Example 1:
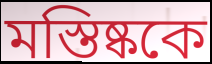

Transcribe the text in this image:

মস্তিষ্ককে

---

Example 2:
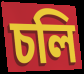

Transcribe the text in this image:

চলি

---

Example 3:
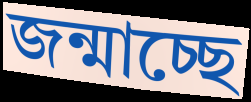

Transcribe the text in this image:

জন্মাচ্ছে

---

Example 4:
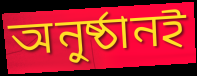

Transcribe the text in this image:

অনুষ্ঠানই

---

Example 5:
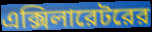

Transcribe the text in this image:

এক্সিলারেটরের